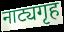
नाट्यगृह